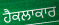
ਹੈਕਲਾਕਾਰ